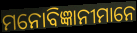
ମନୋବିଜ୍ଞାନୀମାନେ